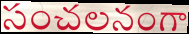
సంచలనంగా